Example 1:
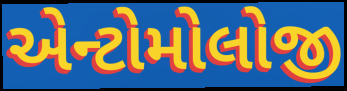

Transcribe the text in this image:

એન્ટોમોલોજી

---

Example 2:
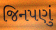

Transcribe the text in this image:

જિનપણું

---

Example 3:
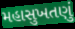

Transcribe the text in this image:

મહાસુખતણું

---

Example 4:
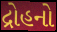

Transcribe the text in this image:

દ્રોહનો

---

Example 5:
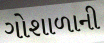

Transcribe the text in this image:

ગોશાળાની